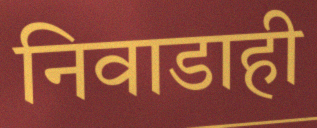
निवाडाही